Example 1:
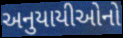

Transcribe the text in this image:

અનુયાયીઓનો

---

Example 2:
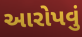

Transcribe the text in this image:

આરોપવું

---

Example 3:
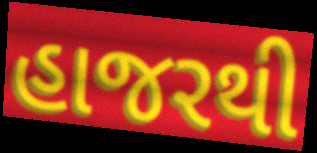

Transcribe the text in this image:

હાજરથી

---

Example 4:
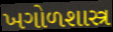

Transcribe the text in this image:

ખગોળશાસ્ત્ર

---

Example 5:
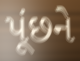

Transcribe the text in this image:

પૂંછને